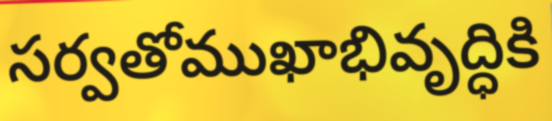
సర్వతోముఖాభివృద్ధికి